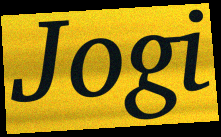
Jogi